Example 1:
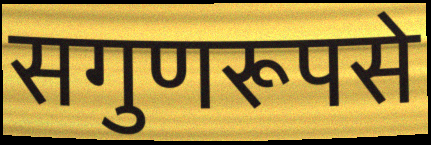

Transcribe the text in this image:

सगुणरूपसे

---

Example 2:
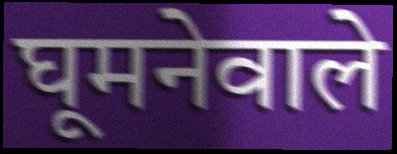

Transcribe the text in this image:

घूमनेवाले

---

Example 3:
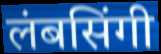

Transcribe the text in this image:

लंबसिंगी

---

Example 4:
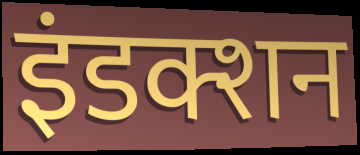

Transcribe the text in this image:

इंडक्शन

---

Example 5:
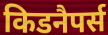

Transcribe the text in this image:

किडनैपर्स